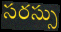
సరస్సు